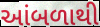
આંબળાથી